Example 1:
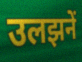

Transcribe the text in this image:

उलझनें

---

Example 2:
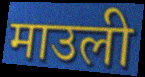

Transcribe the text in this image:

माउली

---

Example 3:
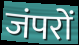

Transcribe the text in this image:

जंपरों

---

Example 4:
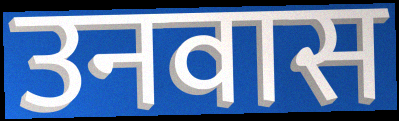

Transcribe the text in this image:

उनवास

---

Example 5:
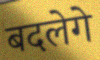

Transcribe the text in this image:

बदलेगे